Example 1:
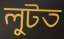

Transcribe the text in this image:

লুটত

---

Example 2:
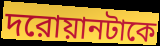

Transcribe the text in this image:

দরোয়ানটাকে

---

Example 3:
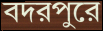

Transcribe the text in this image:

বদরপুরে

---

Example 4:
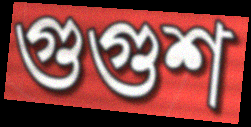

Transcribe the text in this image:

গুগুশ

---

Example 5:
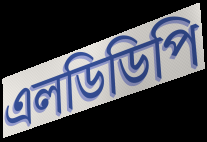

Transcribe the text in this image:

এলডিডিপি